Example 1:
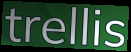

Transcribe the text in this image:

trellis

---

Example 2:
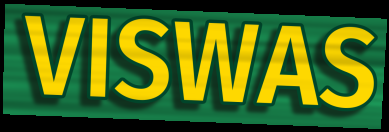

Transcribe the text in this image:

VISWAS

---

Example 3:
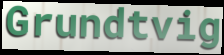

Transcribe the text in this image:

Grundtvig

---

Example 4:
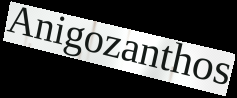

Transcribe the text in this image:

Anigozanthos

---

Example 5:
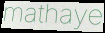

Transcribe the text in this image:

mathaye